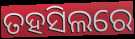
ତହସିଲରେ